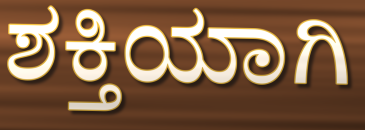
ಶಕ್ತಿಯಾಗಿ